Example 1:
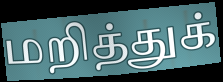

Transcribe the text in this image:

மறித்துக்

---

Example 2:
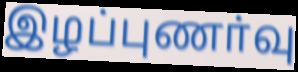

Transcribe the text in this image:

இழப்புணர்வு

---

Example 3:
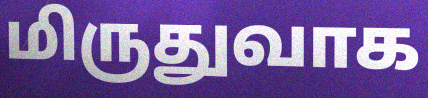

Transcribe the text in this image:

மிருதுவாக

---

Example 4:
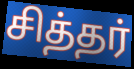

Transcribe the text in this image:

சித்தர்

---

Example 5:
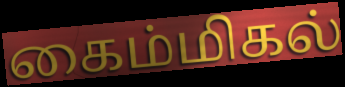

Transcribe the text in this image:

கைம்மிகல்